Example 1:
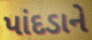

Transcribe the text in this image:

પાંદડાને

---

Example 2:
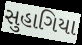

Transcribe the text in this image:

સુહાગિયા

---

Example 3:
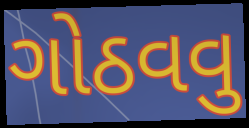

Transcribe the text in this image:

ગોઠવવુ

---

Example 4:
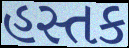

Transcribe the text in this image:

હસ્તક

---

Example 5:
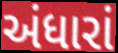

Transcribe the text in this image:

અંધારાં